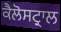
ਕੈਲੋਸਟ੍ਰਾਲ